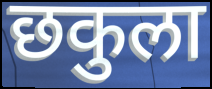
छकुला